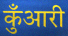
कुँआरी